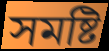
সমষ্টি